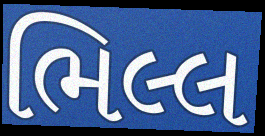
ભિલ્લ